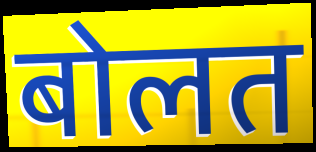
बोलत